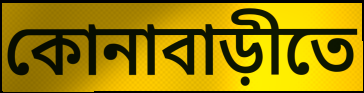
কোনাবাড়ীতে